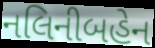
નલિનીબહેન